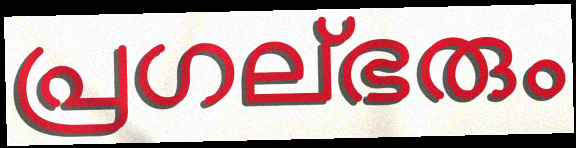
പ്രഗല്ഭരും